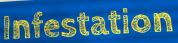
Infestation